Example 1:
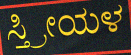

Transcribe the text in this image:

ಸ್ತ್ರೀಯಳ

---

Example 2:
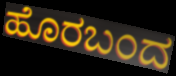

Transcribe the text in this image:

ಹೊರಬಂದ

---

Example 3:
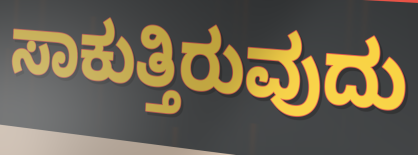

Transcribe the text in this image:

ಸಾಕುತ್ತಿರುವುದು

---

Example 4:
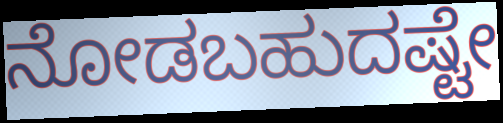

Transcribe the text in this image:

ನೋಡಬಹುದಷ್ಟೇ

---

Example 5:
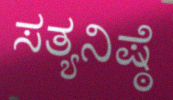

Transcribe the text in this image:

ಸತ್ಯನಿಷ್ಠೆ